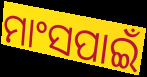
ମାଂସପାଇଁ